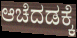
ಆಚೆದಡಕ್ಕೆ